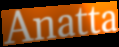
Anatta